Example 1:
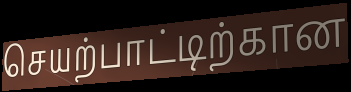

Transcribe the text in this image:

செயற்பாட்டிற்கான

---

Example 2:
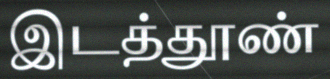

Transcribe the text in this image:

இடத்தூண்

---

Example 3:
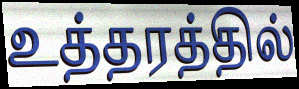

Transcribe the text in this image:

உத்தரத்தில்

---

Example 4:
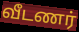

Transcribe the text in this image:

வீடணர்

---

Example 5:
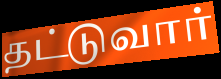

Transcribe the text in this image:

தட்டுவார்